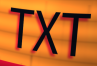
TXT